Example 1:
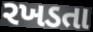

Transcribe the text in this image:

રખડતા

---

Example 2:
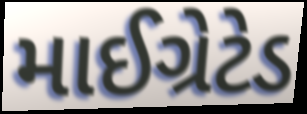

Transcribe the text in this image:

માઈગ્રેટેડ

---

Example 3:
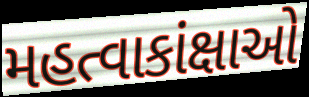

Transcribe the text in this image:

મહત્વાકાંક્ષાઓ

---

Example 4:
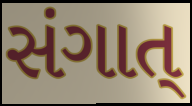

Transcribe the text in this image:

સંગાત્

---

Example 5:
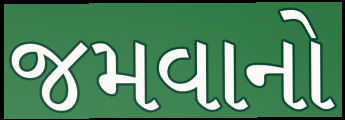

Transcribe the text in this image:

જમવાનો